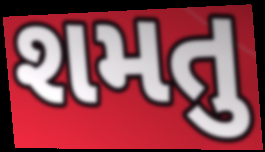
શમતુ